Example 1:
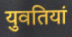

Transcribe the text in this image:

युवतियां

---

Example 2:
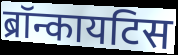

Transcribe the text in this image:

ब्रॉन्कायटिस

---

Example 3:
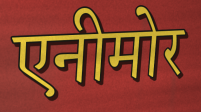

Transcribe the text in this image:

एनीमोर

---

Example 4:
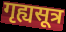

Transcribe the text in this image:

गृह्यसूत्र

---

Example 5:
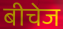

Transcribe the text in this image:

बीचेज